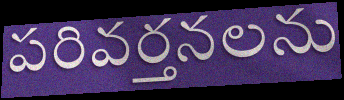
పరివర్తనలను